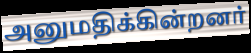
அனுமதிக்கின்றனர்